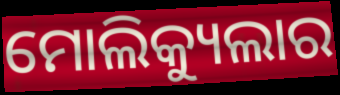
ମୋଲିକ୍ୟୁଲାର